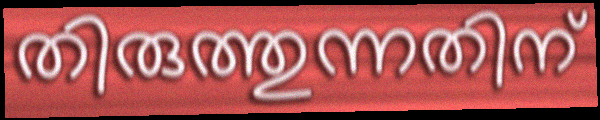
തിരുത്തുന്നതിന്